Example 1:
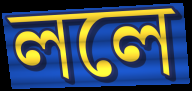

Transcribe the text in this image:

ললে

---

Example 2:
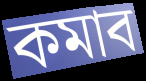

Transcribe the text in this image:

কমাব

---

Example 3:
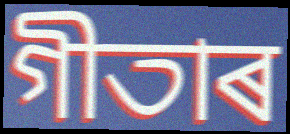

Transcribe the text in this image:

গীতাৰ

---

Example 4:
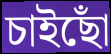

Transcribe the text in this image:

চাইছোঁ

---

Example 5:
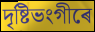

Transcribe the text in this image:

দৃষ্টিভংগীৰে